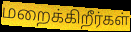
மறைக்கிறீர்கள்